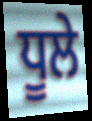
ਧੂਲੇ